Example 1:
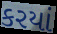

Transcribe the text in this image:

કરયાં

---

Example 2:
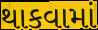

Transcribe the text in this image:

થાકવામાં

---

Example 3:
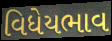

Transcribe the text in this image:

વિધેયભાવ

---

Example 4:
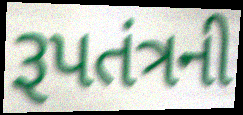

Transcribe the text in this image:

રૂપતંત્રની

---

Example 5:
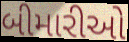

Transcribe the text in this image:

બીમારીઓ